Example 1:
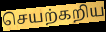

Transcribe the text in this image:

செயற்கறிய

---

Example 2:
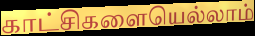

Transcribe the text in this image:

காட்சிகளையெல்லாம்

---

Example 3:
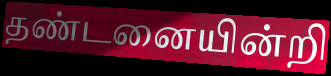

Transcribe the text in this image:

தண்டனையின்றி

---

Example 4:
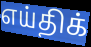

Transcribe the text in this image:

எய்திக்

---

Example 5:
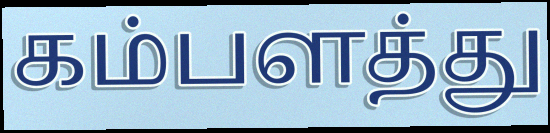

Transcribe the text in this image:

கம்பளத்து